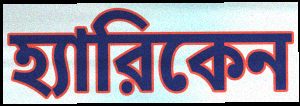
হ্যারিকেন